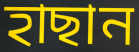
হাছান